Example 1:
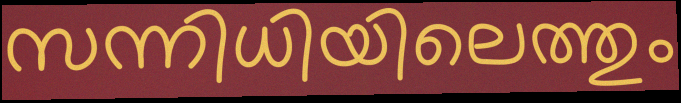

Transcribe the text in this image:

സന്നിധിയിലെത്തും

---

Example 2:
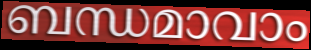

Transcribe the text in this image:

ബന്ധമാവാം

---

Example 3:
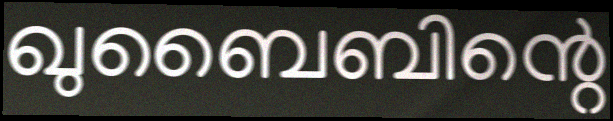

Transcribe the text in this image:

ഖുബൈബിന്റെ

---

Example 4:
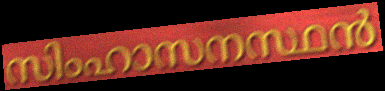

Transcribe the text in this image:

സിംഹാസനസ്ഥൻ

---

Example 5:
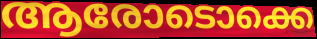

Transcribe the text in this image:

ആരോടൊക്കെ